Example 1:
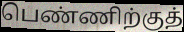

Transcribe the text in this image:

பெண்ணிற்குத்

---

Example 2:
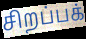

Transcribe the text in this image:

சிறப்பக்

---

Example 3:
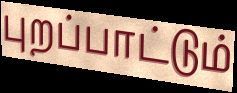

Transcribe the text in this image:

புறப்பாட்டும்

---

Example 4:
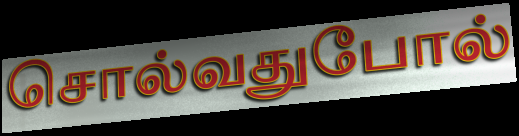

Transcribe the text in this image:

சொல்வதுபோல்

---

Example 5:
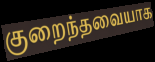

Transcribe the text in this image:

குறைந்தவையாக